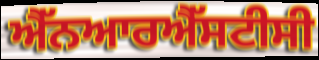
ਐੱਨਆਰਐੱਸਟੀਸੀ